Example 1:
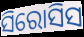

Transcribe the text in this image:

ସିରୋସିସ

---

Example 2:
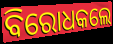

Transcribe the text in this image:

ବିରୋଧକଲେ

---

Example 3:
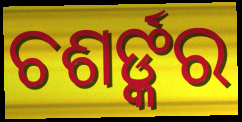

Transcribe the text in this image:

ଚଶର୍ଙ୍କର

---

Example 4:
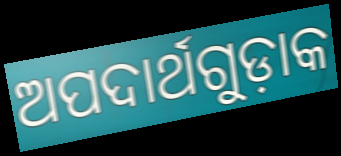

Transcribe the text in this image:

ଅପଦାର୍ଥଗୁଡ଼ାକ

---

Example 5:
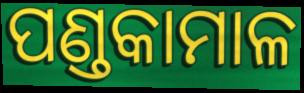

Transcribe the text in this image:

ପଣ୍ଡକାମାଳ